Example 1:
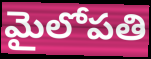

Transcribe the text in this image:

మైలోపతి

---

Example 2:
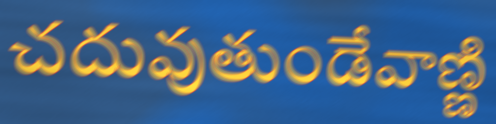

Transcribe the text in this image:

చదువుతుండేవాణ్ణి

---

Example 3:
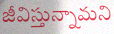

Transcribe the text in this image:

జీవిస్తున్నామని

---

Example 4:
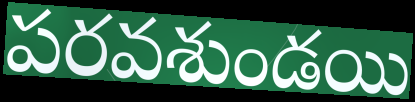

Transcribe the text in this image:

పరవశుండయి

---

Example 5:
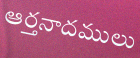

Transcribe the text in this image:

ఆర్తనాదములు